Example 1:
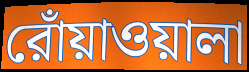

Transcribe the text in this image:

রোঁয়াওয়ালা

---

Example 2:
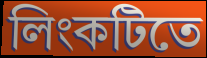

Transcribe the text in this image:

লিংকটিতে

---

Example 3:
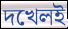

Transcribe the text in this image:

দখেলই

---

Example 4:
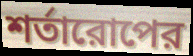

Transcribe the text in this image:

শর্তারোপের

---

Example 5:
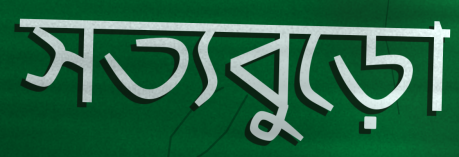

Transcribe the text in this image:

সত্যবুড়ো